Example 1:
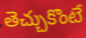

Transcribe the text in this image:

తెచ్చుకొంటే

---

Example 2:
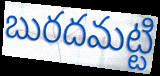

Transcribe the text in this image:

బురదమట్టి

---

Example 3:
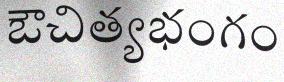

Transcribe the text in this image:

ఔచిత్యభంగం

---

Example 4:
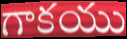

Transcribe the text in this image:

గాకయు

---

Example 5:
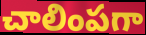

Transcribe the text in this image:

చాలింపగా